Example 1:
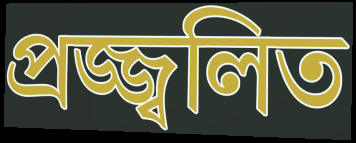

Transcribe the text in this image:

প্রজ্জ্বলিত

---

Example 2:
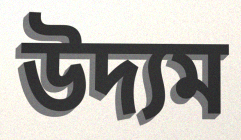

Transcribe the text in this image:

উদ্যম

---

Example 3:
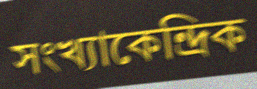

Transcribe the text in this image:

সংখ্যাকেন্দ্রিক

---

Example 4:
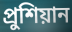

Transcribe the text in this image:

প্রুশিয়ান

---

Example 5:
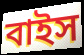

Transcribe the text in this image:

বাইস